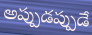
అప్పుడప్పుడే